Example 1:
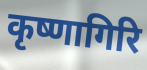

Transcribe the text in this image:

कृष्णागिरि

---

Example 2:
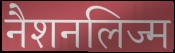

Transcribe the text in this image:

नैशनलिज्म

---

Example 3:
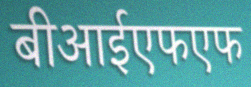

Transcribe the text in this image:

बीआईएफएफ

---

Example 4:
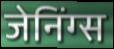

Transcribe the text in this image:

जेनिंग्स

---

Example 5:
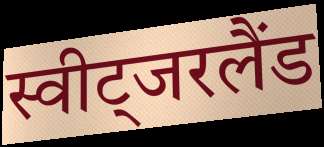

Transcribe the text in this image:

स्वीट्जरलैंड